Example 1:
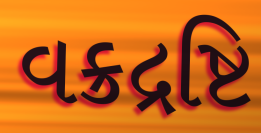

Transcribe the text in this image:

વક્રદ્રષ્ટિ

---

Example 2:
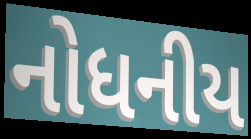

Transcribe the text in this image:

નોધનીય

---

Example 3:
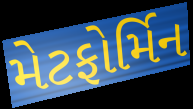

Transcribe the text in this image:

મેટફોર્મિન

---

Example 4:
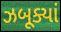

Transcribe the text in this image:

ઝબૂક્યાં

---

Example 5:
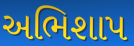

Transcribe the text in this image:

અભિશાપ